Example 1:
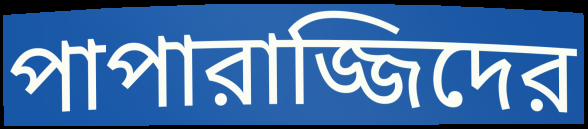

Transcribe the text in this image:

পাপারাজ্জিদের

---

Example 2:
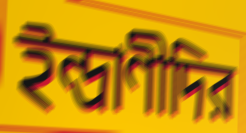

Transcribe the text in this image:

ইন্দ্রাণীদির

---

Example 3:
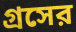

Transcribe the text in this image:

গ্রসের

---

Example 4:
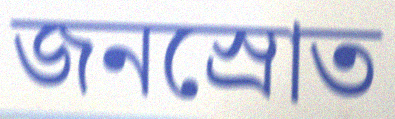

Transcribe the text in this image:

জনস্রোত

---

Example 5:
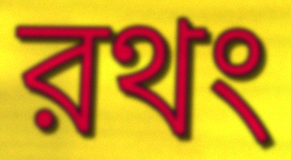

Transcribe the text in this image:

রথং